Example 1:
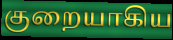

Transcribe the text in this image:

குறையாகிய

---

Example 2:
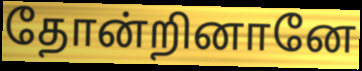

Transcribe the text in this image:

தோன்றினானே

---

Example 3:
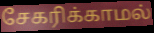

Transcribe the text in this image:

சேகரிக்காமல்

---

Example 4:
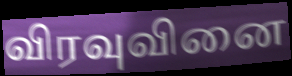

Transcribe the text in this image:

விரவுவினை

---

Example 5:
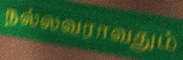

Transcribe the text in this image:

நல்லவராவதும்